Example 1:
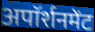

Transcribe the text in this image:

अपॉर्शनमेंट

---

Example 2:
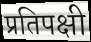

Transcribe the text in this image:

प्रतिपक्षी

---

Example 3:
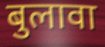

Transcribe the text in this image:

बुलावा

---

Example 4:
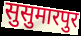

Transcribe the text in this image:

सुसुमारपुर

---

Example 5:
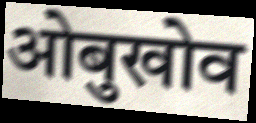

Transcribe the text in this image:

ओबुखोव